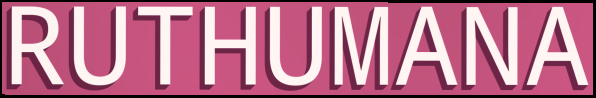
RUTHUMANA